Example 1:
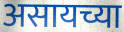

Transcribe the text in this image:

असायच्या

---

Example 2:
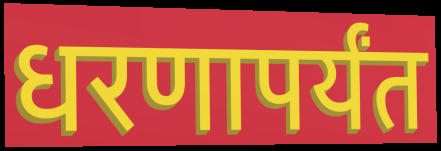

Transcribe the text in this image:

धरणापर्यंत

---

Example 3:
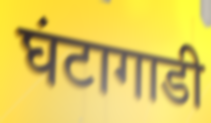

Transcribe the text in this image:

घंटागाडी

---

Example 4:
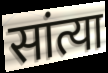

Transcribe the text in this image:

सांत्या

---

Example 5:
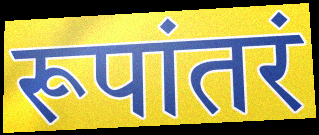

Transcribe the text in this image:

रूपांतरं